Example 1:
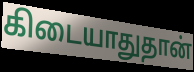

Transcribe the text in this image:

கிடையாதுதான்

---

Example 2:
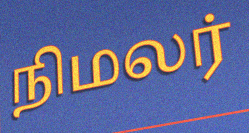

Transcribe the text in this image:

நிமலர்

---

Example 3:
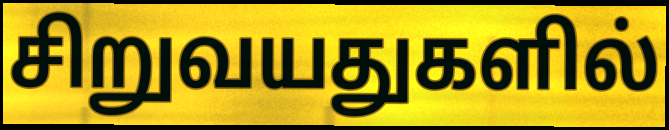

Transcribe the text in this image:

சிறுவயதுகளில்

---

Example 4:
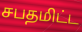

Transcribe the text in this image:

சபதமிட்ட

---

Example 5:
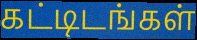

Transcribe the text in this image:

கட்டிடங்கள்